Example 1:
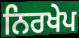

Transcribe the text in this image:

ਨਿਰਖੇਪ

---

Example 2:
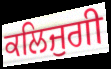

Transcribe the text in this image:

ਕਲਿਜੁਗੀ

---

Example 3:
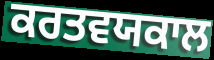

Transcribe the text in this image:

ਕਰਤਵਯਕਾਲ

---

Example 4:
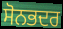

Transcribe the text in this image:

ਸੋਨਭਦਰ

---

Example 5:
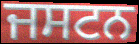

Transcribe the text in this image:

ਜਸਟਨ